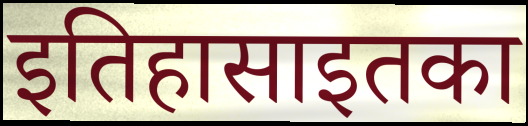
इतिहासाइतका